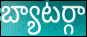
బ్యాటర్గా